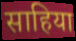
साहिया